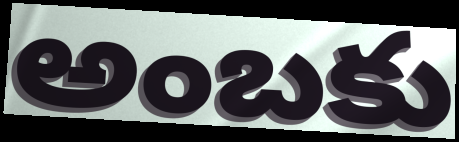
అంబకు